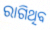
ରାଗିଥିବ